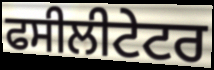
ਫਸੀਲੀਟੇਟਰ